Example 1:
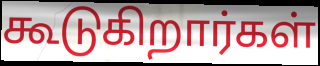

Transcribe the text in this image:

கூடுகிறார்கள்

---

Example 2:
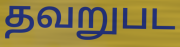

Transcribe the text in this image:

தவறுபட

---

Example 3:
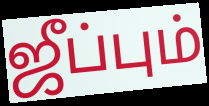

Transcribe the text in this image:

ஜீப்பும்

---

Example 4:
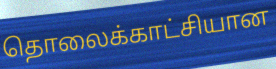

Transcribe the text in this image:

தொலைக்காட்சியான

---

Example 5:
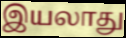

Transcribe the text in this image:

இயலாது